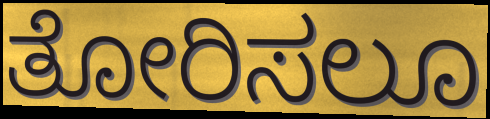
ತೋರಿಸಲೂ